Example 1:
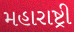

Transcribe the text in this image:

મહારાષ્ટ્રી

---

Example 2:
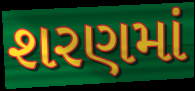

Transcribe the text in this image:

શરણમાં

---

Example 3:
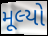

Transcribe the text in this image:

મૂલ્યો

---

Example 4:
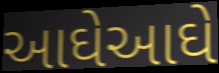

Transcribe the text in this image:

આઘેઆઘે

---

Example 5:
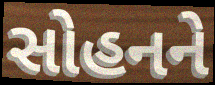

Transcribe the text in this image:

સોહનને